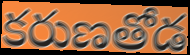
కరుణతోడ